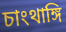
চাংথাঙ্গি